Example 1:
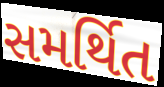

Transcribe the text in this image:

સમર્થિત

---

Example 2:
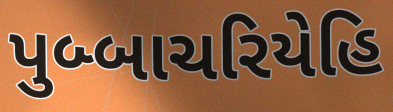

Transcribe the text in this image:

પુબ્બાચરિયેહિ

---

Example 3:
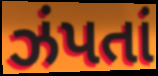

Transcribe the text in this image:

ઝંપતાં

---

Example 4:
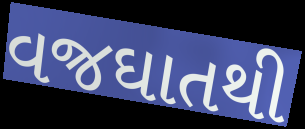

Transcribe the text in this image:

વજ્રઘાતથી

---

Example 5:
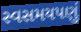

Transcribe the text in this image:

સ્વસમયપણું